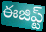
ఈజిప్ట్